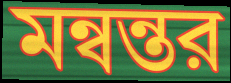
মন্বন্তর